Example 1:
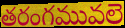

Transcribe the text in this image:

తరంగమువలె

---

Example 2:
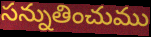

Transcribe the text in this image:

సన్నుతించుము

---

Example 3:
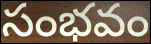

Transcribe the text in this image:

సంభవం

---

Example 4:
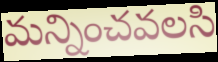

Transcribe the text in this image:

మన్నించవలసి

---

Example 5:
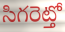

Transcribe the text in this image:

సిగరెట్తో